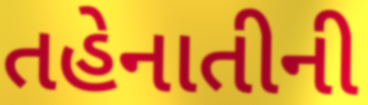
તહેનાતીની